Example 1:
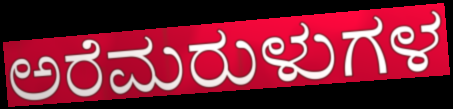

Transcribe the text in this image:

ಅರೆಮರುಳುಗಳ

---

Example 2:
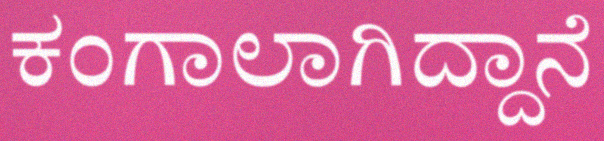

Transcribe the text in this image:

ಕಂಗಾಲಾಗಿದ್ದಾನೆ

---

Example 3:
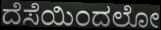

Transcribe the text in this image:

ದೆಸೆಯಿಂದಲೋ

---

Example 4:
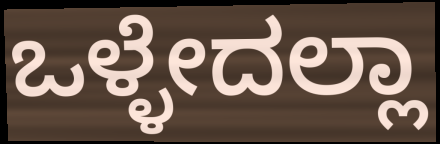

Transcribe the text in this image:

ಒಳ್ಳೇದಲ್ಲಾ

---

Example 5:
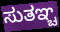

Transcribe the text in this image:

ಸುತಞ್ಚ